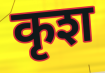
कृश